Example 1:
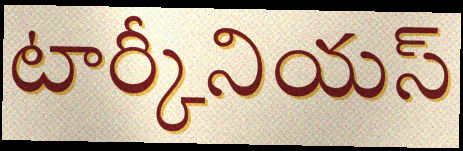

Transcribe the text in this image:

టార్కీనియస్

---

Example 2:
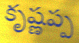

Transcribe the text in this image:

కృష్ణప్ప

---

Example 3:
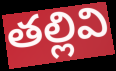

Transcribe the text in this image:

తల్లివి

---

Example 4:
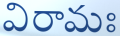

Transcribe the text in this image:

విరామః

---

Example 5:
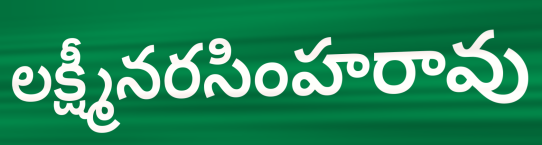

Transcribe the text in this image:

లక్ష్మీనరసింహరావు